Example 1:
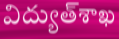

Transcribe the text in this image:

విద్యుత్‌శాఖ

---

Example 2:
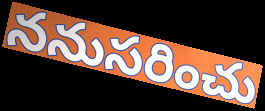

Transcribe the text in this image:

ననుసరించు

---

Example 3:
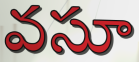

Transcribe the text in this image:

వసూ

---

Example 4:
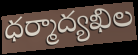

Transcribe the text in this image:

ధర్మాద్యఖిల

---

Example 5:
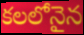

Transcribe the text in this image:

కలలోనైన